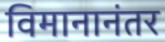
विमानानंतर